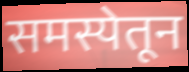
समस्येतून